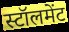
स्टॉलमेंट